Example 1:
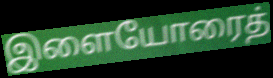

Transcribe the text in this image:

இளையோரைத்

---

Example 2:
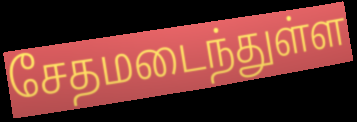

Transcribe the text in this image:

சேதமடைந்துள்ள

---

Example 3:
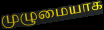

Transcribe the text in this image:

முழுமையாக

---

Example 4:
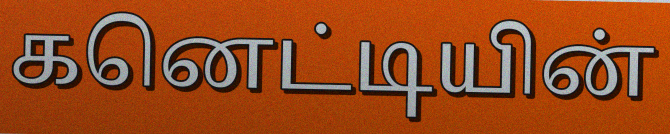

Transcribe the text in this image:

கனெட்டியின்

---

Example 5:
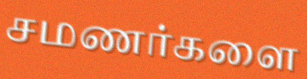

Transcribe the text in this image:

சமணர்களை